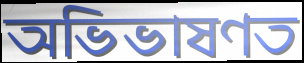
অভিভাষণত